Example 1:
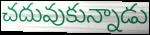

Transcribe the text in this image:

చదువుకున్నాడు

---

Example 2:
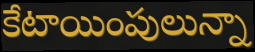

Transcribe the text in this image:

కేటాయింపులున్నా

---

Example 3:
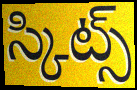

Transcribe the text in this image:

స్కిట్స్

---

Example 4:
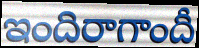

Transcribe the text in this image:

ఇందిరాగాందీ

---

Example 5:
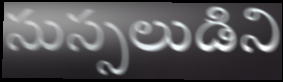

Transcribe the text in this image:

సుస్సలుడిని